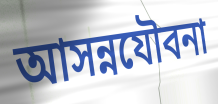
আসন্নযৌবনা